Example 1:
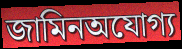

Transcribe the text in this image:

জামিনঅযোগ্য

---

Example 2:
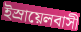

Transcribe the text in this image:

ইস্রায়েলবাসী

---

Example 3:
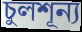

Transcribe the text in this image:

চুলশূন্য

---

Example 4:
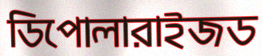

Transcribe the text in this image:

ডিপোলারাইজড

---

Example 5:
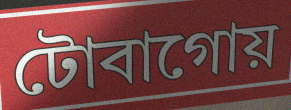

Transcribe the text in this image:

টোবাগোয়